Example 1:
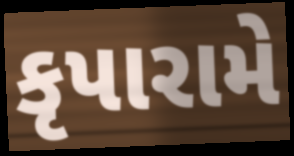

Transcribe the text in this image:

કૃપારામે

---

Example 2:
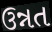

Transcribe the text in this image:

ઉન્નત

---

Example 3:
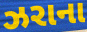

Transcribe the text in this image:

ઝરાના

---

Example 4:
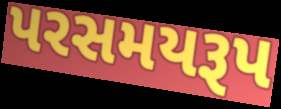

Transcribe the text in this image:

પરસમયરૂપ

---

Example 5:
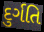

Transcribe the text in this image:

દુર્ગતિ